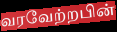
வரவேற்றபின்